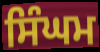
ਸਿੰਘਮ